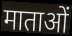
माताओं